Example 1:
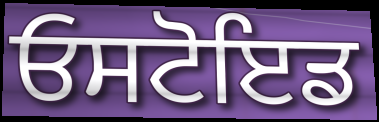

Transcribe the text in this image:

ਓਸਟੋਇਡ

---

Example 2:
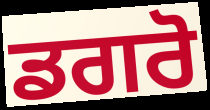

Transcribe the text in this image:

ਡਗਰੋ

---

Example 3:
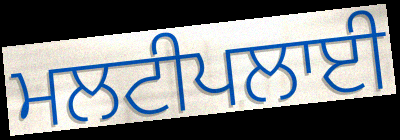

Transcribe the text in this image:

ਮਲਟੀਪਲਾਈ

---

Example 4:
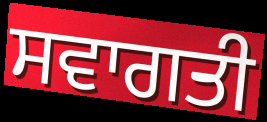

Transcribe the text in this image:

ਸਵਾਗਤੀ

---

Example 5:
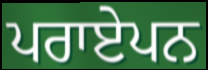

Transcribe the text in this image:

ਪਰਾਏਪਨ